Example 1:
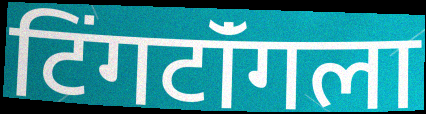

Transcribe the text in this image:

टिंगटॉंगला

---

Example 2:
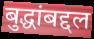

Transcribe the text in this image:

बुद्धांबद्दल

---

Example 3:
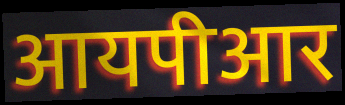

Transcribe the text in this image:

आयपीआर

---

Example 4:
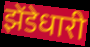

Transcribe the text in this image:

झेंडेधारी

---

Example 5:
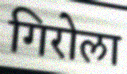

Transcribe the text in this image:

गिरोला